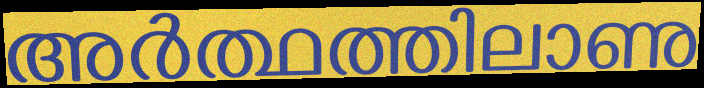
അർത്ഥത്തിലാണു